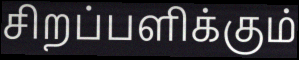
சிறப்பளிக்கும்